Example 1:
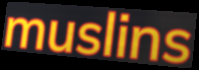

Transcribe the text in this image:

muslins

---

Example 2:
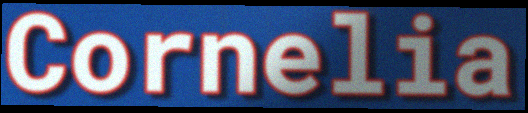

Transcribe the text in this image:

Cornelia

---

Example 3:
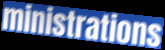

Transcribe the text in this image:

ministrations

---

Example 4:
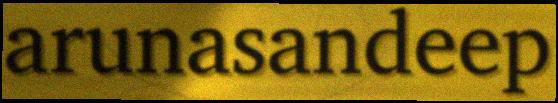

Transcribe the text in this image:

arunasandeep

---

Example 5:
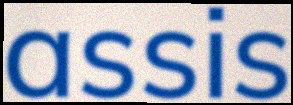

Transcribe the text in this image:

assis